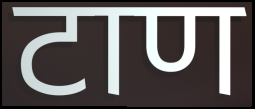
टाण